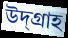
উদ্গ্রাহ